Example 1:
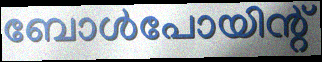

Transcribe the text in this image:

ബോൾപോയിന്റ്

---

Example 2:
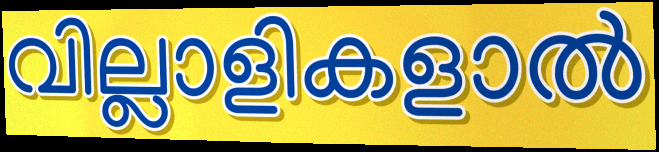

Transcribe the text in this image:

വില്ലാളികളാൽ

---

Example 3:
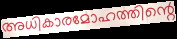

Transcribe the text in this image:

അധികാരമോഹത്തിന്റെ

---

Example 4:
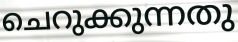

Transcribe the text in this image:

ചെറുക്കുന്നതു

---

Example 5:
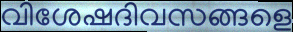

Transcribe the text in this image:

വിശേഷദിവസങ്ങളെ